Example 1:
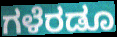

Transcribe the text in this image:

ಗಳೆರಡೂ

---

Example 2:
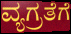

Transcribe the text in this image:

ವ್ಯಗ್ರತೆಗೆ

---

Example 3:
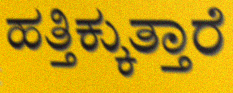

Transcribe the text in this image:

ಹತ್ತಿಕ್ಕುತ್ತಾರೆ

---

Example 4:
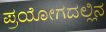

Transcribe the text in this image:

ಪ್ರಯೋಗದಲ್ಲಿನ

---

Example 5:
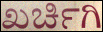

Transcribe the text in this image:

ಖರ್ಚಿಗಿ